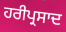
ਹਰੀਪ੍ਰਸਾਦ